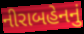
નીરાબહેનનું